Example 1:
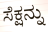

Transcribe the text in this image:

ಸೆಕ್ಷನ್ನು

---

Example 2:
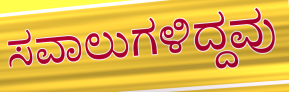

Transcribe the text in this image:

ಸವಾಲುಗಳಿದ್ದವು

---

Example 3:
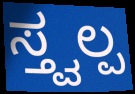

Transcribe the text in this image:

ಸ್ತ್ವಲ್ಪ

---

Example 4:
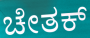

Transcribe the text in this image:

ಚೇತಕ್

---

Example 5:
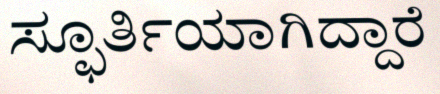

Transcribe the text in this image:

ಸ್ಫೂರ್ತಿಯಾಗಿದ್ದಾರೆ